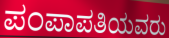
ಪಂಪಾಪತಿಯವರು